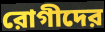
রোগীদের